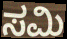
ಸಮಿ